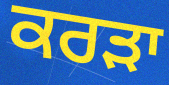
ਕਰੜਾ